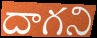
దాగని